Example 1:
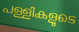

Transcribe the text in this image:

പള്ളികളുടെ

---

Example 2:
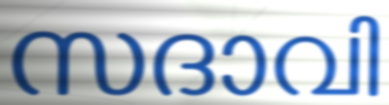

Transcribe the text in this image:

സദാവി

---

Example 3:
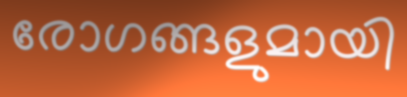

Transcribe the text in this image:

രോഗങ്ങളുമായി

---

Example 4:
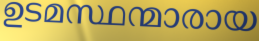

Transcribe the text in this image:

ഉടമസ്ഥന്മാരായ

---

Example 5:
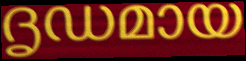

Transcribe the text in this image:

ദൃഡമായ